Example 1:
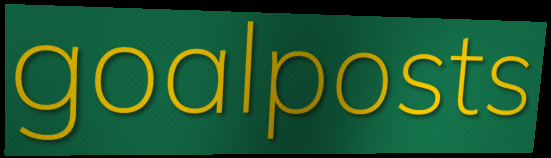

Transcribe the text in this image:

goalposts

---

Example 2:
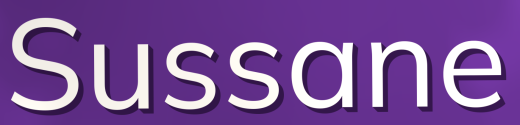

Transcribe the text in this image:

Sussane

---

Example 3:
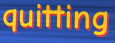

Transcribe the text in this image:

quitting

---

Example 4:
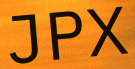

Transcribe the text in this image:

JPX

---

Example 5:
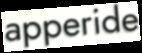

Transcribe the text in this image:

apperide